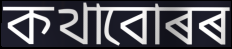
কথাবোৰৰ